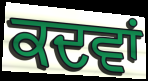
ਕਦਵਾਂ